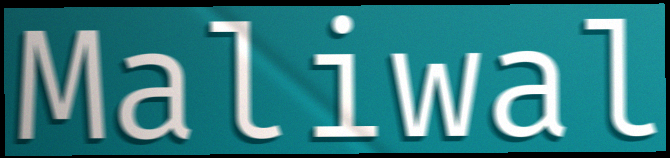
Maliwal